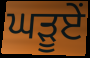
ਘੜੂਏਂ